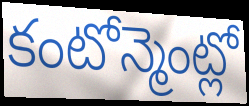
కంటోన్మెంట్లో